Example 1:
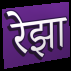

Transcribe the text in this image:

रेझा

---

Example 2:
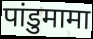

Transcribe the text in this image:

पांडुमामा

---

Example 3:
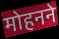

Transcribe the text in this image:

मोहनने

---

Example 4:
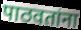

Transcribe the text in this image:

पाठवतांना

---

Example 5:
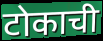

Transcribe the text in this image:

टोकाची